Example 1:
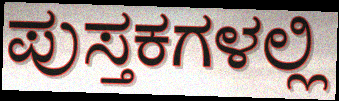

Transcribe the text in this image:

ಪುಸ್ತಕಗಳಲ್ಲಿ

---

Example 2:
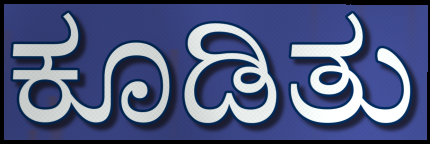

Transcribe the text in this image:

ಕೂಡಿತು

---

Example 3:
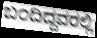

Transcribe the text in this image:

ಬಂದಿದ್ದವರಲ್ಲಿ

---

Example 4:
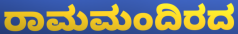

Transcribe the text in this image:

ರಾಮಮಂದಿರದ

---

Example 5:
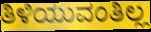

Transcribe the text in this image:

ತಿಳಿಯುವಂತಿಲ್ಲ